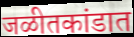
जळीतकांडात